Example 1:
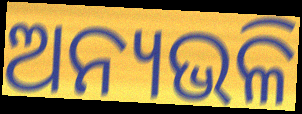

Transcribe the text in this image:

ଅନ୍ୟଭଳି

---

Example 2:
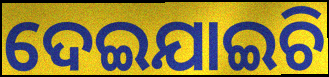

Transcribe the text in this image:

ଦେଇଯାଇଚି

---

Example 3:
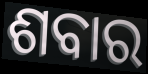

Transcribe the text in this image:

ଶବାର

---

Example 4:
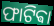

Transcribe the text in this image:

ଫାଟିଵା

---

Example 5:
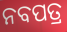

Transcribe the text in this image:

ନବପତ୍ର